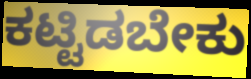
ಕಟ್ಟಿಡಬೇಕು